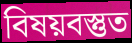
বিষয়বস্তুত